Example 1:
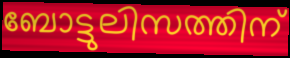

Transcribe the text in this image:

ബോട്ടുലിസത്തിന്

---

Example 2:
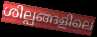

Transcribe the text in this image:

ശില്പങ്ങളിലെ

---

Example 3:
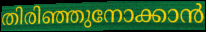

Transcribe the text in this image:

തിരിഞ്ഞുനോക്കാൻ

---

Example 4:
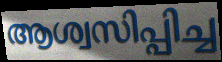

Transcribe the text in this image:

ആശ്വസിപ്പിച്ച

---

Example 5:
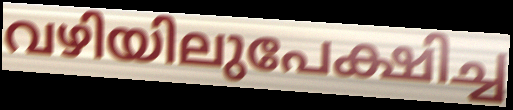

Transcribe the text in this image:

വഴിയിലുപേക്ഷിച്ച